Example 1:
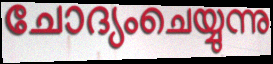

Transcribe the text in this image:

ചോദ്യംചെയ്യുന്നു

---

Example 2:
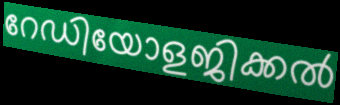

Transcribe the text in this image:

റേഡിയോളജിക്കൽ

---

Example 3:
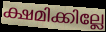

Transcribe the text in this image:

ക്ഷമിക്കില്ലേ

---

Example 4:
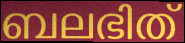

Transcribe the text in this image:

ബലഭിത്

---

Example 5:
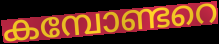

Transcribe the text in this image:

കമ്പോണ്ടറെ